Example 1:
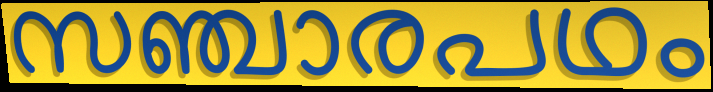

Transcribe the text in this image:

സഞ്ചാരപഥം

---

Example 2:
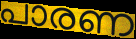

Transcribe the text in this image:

പാരണ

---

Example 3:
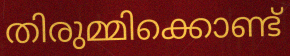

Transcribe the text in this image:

തിരുമ്മിക്കൊണ്ട്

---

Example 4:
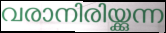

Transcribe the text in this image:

വരാനിരിയ്ക്കുന്ന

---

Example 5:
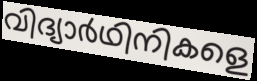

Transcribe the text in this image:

വിദ്യാർഥിനികളെ